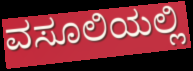
ವಸೂಲಿಯಲ್ಲಿ